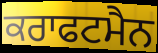
ਕਰਾਫਟਮੈਨ